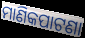
ମାଣିକପାଟଣା